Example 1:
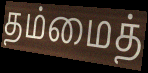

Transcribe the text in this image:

தம்மைத்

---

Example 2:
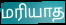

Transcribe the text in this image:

மரியாத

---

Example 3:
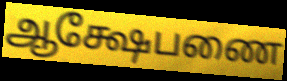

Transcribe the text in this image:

ஆக்ஷேபணை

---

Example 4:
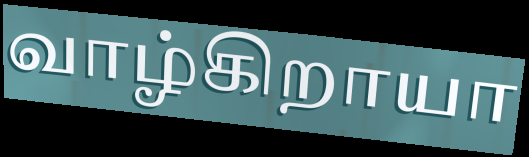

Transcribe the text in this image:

வாழ்கிறாயா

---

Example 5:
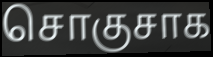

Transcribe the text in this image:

சொகுசாக